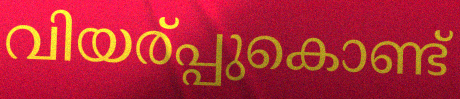
വിയര്പ്പുകൊണ്ട്